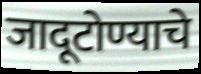
जादूटोण्याचे